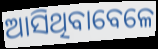
ଆସିଥିବାବେଳେ